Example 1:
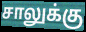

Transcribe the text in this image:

சாலுக்கு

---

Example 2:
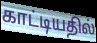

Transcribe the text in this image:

காட்டியதில்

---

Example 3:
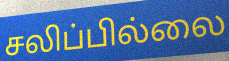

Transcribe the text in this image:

சலிப்பில்லை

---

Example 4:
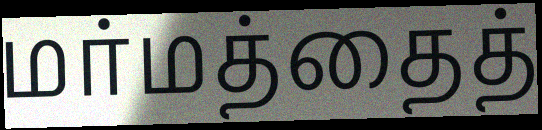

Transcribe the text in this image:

மர்மத்தைத்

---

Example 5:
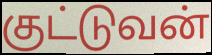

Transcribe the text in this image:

குட்டுவன்